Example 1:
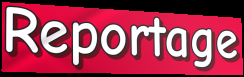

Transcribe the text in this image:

Reportage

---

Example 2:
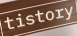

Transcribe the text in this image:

tistory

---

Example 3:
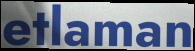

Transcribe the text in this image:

etlaman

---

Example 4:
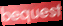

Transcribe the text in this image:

bequest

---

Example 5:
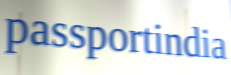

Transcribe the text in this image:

passportindia